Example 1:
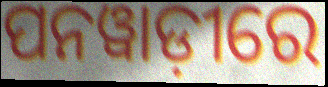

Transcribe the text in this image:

ପନୱାଡ଼ୀରେ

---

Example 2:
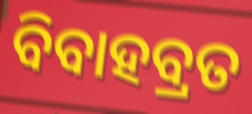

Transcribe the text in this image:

ବିବାହବ୍ରତ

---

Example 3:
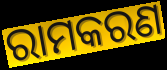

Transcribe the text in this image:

ରାମକରଣ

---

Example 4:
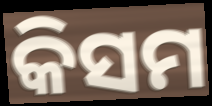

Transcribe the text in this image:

କିସମ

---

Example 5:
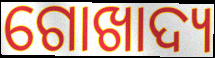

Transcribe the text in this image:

ଗୋଖାଦ୍ୟ